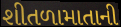
શીતળામાતાની